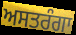
ਅਸਤਰੰਗਾ